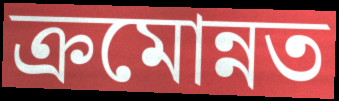
ক্রমোন্নত